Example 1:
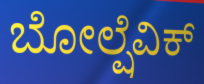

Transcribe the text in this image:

ಬೋಲ್ಷೆವಿಕ್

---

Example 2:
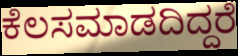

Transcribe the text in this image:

ಕೆಲಸಮಾಡದಿದ್ದರೆ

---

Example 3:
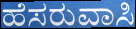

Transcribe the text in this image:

ಹೆಸರುವಾಸಿ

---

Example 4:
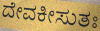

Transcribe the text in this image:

ದೇವಕೀಸುತಃ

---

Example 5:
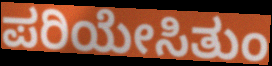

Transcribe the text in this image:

ಪರಿಯೇಸಿತುಂ